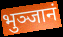
भुञ्जानं